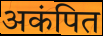
अकंपित